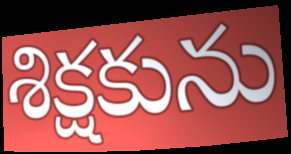
శిక్షకును